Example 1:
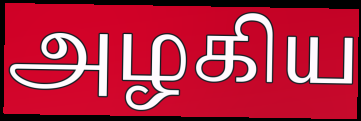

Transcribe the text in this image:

அழகிய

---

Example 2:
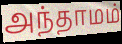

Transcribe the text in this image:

அந்தாமம்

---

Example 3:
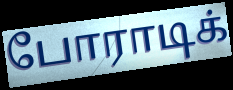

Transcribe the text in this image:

போராடிக்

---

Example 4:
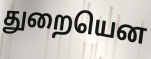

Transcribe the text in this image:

துறையென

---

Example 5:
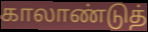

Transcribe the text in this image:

காலாண்டுத்